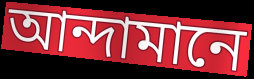
আন্দামানে